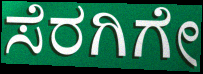
ಸೆರಗಿಗೇ